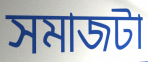
সমাজটা